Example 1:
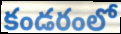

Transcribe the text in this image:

కండరంలో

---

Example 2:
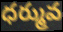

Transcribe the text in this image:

ధర్మువ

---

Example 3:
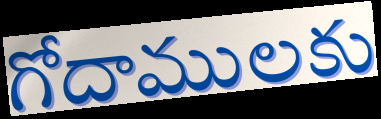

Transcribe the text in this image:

గోదాములకు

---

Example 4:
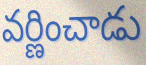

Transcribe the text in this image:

వర్ణించాడు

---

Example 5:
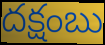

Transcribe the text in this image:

దక్షంబు